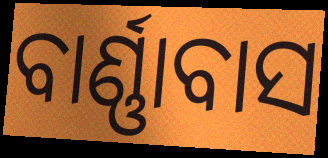
ବାର୍ଣ୍ଣାବାସ